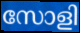
സോളി